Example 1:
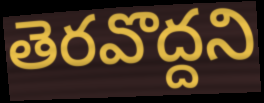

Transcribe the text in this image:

తెరవొద్దని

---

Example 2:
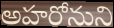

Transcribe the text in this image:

అహరోనుని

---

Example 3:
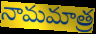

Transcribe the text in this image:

నామమాత్ర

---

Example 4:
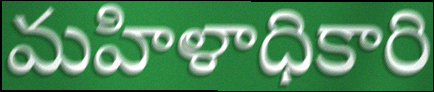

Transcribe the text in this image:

మహిళాధికారి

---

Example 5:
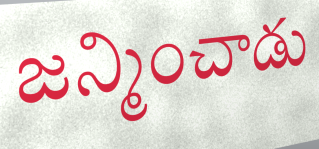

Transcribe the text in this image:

జన్మించాడు